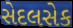
સેદલસેક